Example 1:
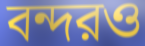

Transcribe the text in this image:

বন্দরও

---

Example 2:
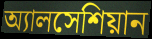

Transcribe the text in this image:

অ্যালসেশিয়ান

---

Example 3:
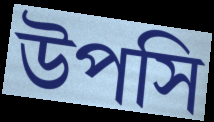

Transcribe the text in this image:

উপসি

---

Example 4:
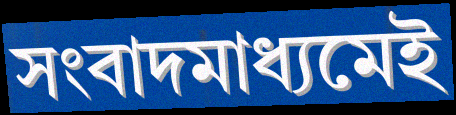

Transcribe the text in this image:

সংবাদমাধ্যমেই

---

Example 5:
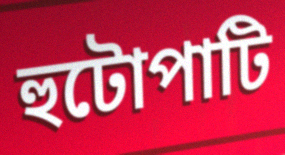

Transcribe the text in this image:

হুটোপাটি